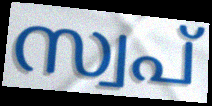
സ്വപ്